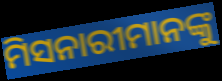
ମିସନାରୀମାନଙ୍କୁ